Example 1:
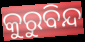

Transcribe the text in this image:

କୁରୁବିନ୍ଦ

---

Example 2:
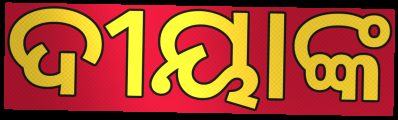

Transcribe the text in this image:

ଦୀୟାଙ୍କ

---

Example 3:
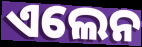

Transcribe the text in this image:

ଏଲେନ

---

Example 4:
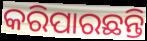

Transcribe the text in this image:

କରିପାରଛନ୍ତି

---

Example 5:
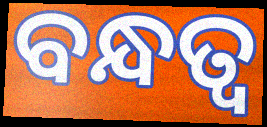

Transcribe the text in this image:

ବନ୍ଧତ୍ୱ